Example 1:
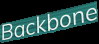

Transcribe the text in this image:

Backbone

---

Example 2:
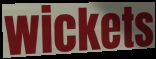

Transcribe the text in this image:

wickets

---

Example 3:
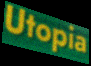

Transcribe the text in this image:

Utopia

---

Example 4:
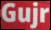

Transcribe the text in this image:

Gujr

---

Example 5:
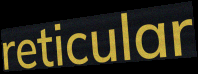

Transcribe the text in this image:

reticular